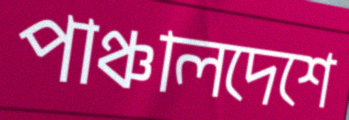
পাঞ্চালদেশে